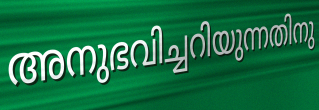
അനുഭവിച്ചറിയുന്നതിനു